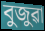
বুজুৱা